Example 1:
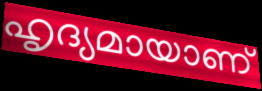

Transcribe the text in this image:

ഹൃദ്യമായാണ്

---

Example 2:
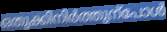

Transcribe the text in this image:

ഒതുക്കിനിർത്തുന്പോൾ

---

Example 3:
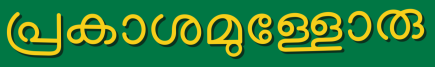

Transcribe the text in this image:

പ്രകാശമുള്ളോരു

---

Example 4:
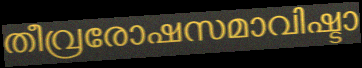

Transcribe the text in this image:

തീവ്രരോഷസമാവിഷ്ടാ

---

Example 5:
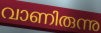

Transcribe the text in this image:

വാണിരുന്നു